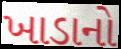
ખાડાનો